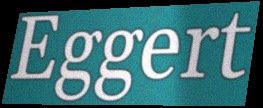
Eggert